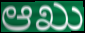
ಆಖು